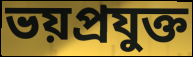
ভয়প্রযুক্ত